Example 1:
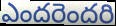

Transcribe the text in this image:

ఎందరెందరి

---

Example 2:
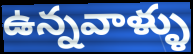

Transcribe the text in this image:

ఉన్నవాళ్ళు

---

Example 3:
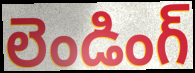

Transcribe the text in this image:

లెండింగ్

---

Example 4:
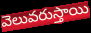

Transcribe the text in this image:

వెలువరుస్తాయి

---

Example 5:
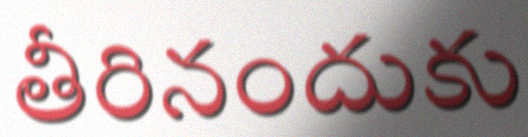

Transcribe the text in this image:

తీరినందుకు